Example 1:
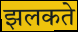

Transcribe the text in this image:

झलकते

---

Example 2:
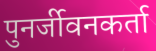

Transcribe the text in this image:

पुनर्जीवनकर्ता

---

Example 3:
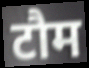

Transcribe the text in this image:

टौम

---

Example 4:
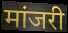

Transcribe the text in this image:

मांजरी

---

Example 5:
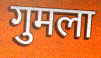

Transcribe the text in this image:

गुमला